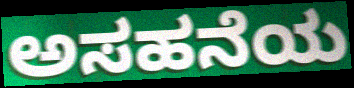
ಅಸಹನೆಯ